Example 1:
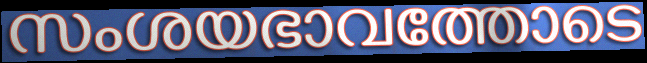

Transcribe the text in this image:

സംശയഭാവത്തോടെ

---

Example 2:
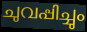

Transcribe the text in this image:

ചുവപ്പിച്ചും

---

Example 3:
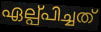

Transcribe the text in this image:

ഏല്പ്പിച്ചത്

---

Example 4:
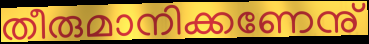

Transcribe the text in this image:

തീരുമാനിക്കണേനു്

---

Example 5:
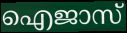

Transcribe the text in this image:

ഐജാസ്